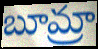
బూమ్రా